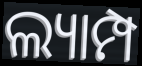
ଲ୍ୟାମ୍ପ